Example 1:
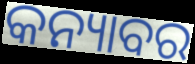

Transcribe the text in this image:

କନ୍ୟାବର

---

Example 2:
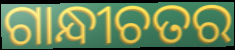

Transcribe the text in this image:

ଗାନ୍ଧୀଚତର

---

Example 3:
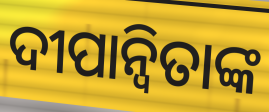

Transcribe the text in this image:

ଦୀପାନ୍ୱିତାଙ୍କ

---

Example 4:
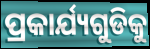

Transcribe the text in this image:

ପ୍ରକାର୍ଯ୍ୟଗୁଡିକୁ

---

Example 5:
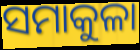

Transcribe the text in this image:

ସମାକୁଳା